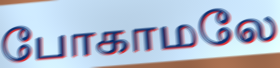
போகாமலே